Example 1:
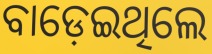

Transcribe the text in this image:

ବାଡ଼େଇଥିଲେ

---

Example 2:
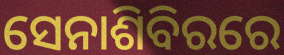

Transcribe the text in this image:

ସେନାଶିବିରରେ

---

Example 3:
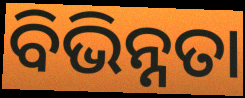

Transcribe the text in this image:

ବିଭିନ୍ନତା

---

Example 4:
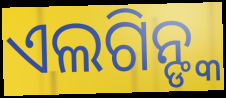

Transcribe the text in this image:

ଏଲଗିନ୍ଙ୍କ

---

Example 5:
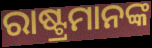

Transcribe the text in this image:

ରାଷ୍ଟ୍ରମାନଙ୍କ